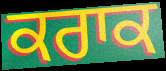
ਕਰਾਕ